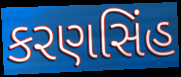
કરણસિંહ